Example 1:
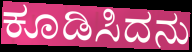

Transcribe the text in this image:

ಕೂಡಿಸಿದನು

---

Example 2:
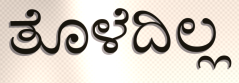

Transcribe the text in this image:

ತೊಳೆದಿಲ್ಲ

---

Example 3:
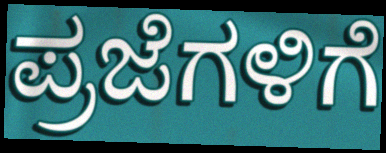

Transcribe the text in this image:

ಪ್ರಜೆಗಳಿಗೆ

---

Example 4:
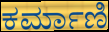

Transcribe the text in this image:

ಕರ್ಮಾಣಿ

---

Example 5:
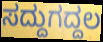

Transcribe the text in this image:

ಸದ್ದುಗದ್ದಲ